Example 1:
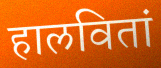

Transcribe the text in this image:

हालवितां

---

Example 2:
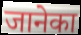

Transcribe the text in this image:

जानेका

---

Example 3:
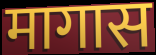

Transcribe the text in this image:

मागास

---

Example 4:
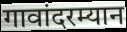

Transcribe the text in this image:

गावांदरम्यान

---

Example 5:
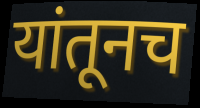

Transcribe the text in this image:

यांतूनच